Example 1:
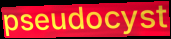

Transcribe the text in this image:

pseudocyst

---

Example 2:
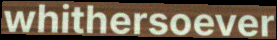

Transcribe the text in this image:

whithersoever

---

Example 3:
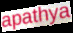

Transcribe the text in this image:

apathya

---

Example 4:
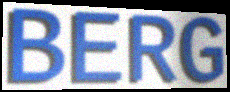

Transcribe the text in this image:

BERG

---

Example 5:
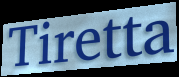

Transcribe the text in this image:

Tiretta